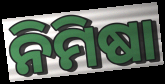
ନିମିଷା